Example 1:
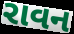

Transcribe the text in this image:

રાવન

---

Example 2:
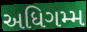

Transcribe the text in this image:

અધિગમ્મ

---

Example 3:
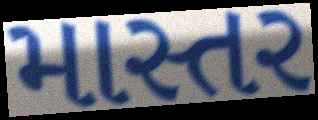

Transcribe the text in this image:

માસ્તર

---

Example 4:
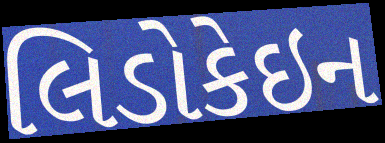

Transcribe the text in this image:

લિડોકેઇન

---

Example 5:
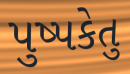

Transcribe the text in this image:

પુષ્પકેતુ